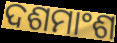
ଦଶମାଂଶ